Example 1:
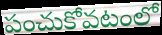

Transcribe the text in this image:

పంచుకోవటంలో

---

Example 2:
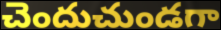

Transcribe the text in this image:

చెందుచుండగా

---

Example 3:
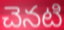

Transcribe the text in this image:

చెనటి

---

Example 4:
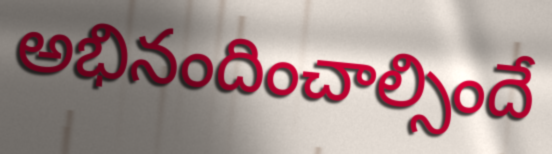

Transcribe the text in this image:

అభినందించాల్సిందే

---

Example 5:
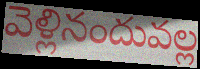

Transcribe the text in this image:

వెళ్లినందువల్ల